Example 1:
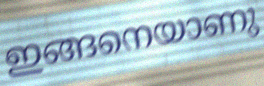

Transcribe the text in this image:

ഇങ്ങനെയാണു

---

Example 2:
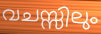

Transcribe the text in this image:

വചസ്സിലും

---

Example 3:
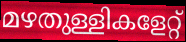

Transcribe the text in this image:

മഴതുള്ളികളേറ്റ്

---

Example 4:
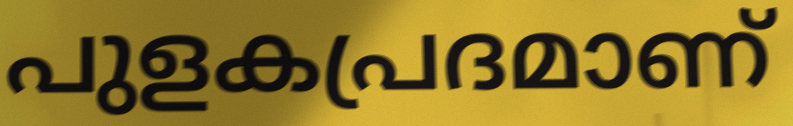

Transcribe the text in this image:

പുളകപ്രദമാണ്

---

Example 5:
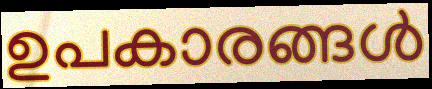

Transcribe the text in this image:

ഉപകാരങ്ങൾ